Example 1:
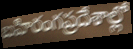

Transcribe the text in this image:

బహిరంగప్రదేశాల్లో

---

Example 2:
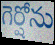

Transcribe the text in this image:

గెర్షోను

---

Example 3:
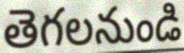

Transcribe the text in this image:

తెగలనుండి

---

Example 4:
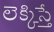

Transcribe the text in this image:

లెక్కిస్తే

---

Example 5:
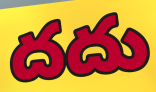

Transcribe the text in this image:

దదు